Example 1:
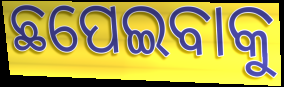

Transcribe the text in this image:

ଛପେଇବାକୁ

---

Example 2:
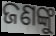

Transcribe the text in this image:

ଜଣଙ୍କୁ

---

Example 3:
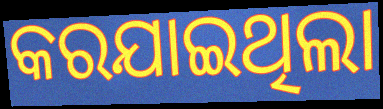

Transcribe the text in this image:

କରଯାଇଥିଲା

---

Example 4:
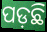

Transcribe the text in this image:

ପଡ଼ଛି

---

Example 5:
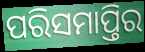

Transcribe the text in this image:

ପରିସମାପ୍ତିର